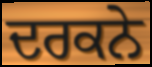
ਦਰਕਨੇ